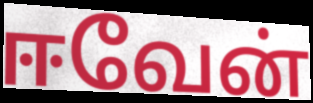
ஈவேன்